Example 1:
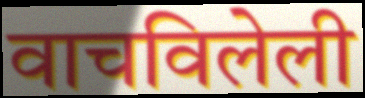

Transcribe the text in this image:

वाचविलेली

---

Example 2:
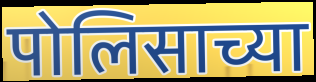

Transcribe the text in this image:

पोलिसाच्या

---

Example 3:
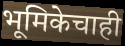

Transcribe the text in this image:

भूमिकेचाही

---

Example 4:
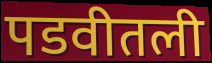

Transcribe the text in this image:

पडवीतली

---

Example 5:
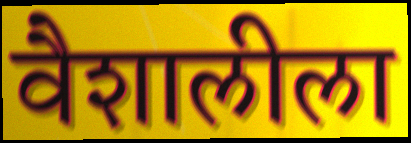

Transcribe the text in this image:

वैशालीला